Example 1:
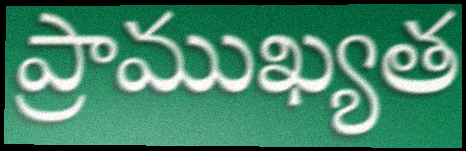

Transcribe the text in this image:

ప్రాముఖ్యత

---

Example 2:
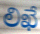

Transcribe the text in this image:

లిఖే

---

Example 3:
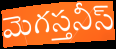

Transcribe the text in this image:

మెగస్తనీస్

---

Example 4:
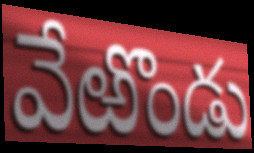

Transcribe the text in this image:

వేఱొండు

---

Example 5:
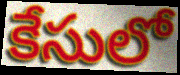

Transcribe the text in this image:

కేసులో